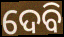
ଦେବି